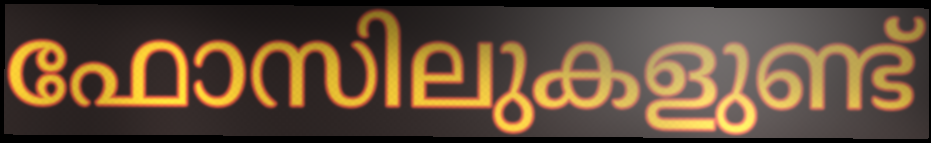
ഫോസിലുകളുണ്ട്